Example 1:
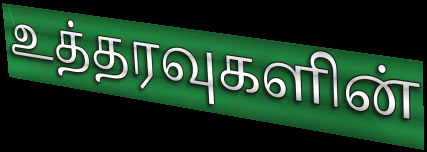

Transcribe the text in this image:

உத்தரவுகளின்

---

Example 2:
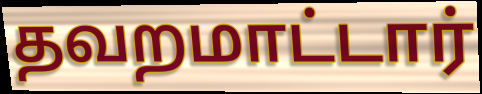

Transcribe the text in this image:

தவறமாட்டார்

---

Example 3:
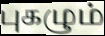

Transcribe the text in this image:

புகழும்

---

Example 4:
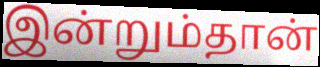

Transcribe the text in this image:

இன்றும்தான்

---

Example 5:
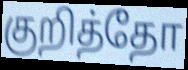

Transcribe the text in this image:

குறித்தோ